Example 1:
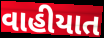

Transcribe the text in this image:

વાહીયાત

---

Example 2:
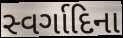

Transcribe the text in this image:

સ્વર્ગાદિના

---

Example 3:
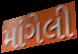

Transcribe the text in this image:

માંગેલી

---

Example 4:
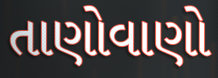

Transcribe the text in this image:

તાણોવાણો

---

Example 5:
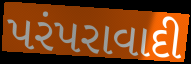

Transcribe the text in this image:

પરંપરાવાદી